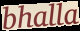
bhalla